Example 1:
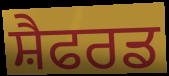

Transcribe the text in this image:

ਸ਼ੈਫਰਡ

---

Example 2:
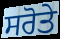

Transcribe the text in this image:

ਸਰੋਤੇ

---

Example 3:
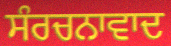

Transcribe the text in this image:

ਸੰਰਚਨਾਵਾਦ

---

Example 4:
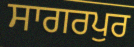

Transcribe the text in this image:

ਸਾਗਰਪੁਰ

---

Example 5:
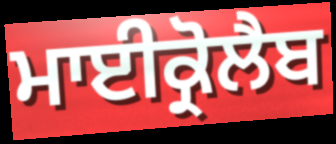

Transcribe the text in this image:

ਮਾਈਕ੍ਰੋਲੈਬ